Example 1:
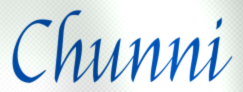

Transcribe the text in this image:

Chunni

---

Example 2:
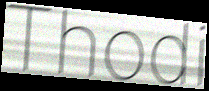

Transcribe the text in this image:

Thodi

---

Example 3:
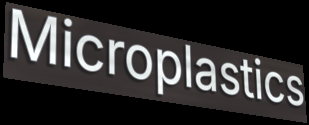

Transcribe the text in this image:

Microplastics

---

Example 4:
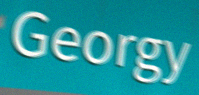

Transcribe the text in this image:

Georgy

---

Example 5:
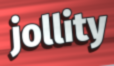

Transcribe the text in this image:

jollity